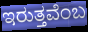
ಇರುತ್ತವೆಂಬ